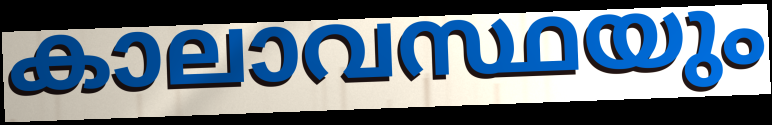
കാലാവസ്ഥയും